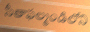
సీతాఫల్మండిలోని